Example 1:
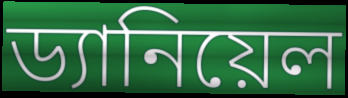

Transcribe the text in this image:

ড্যানিয়েল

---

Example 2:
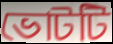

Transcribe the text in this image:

ভোটটি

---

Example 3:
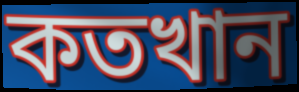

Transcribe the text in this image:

কতখান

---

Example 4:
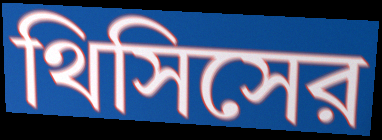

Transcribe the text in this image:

থিসিসের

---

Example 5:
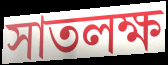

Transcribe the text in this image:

সাতলক্ষ